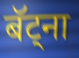
बॅट्ना